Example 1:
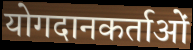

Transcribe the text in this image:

योगदानकर्ताओं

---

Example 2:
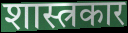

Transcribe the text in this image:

शास्त्रकार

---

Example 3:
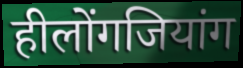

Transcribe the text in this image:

हीलोंगजियांग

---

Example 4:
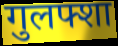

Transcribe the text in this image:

गुलफ्शा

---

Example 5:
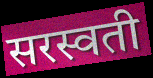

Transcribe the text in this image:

सरस्वती